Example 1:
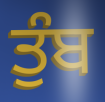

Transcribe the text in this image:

ਤੁੰਬ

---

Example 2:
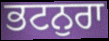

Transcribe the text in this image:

ਭਟਨੁਰਾ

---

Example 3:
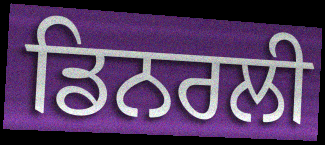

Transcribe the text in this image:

ਡਿਨਰਲੀ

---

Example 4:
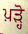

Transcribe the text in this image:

ਪ਼ੜ੍ਹੋ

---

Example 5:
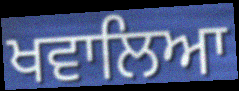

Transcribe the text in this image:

ਖਵਾਲਿਆ